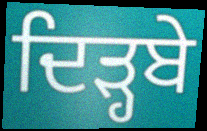
ਦਿੜ੍ਹਬੇ